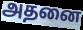
அதனை